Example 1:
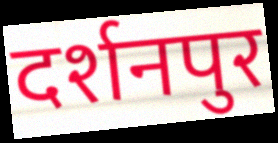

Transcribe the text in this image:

दर्शनपुर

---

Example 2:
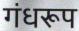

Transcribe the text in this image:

गंधरूप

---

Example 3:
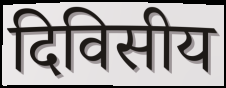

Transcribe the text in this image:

दिविसीय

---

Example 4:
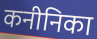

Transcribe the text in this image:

कनीनिका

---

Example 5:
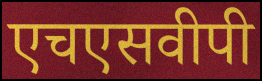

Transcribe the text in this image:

एचएसवीपी